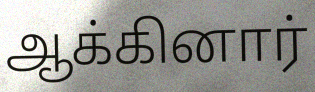
ஆக்கினார்